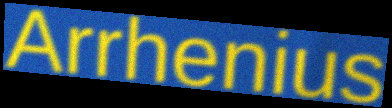
Arrhenius